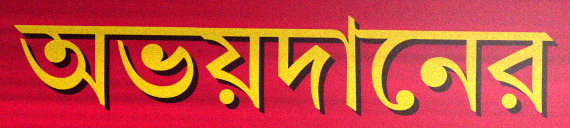
অভয়দানের